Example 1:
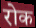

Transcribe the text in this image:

रोक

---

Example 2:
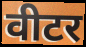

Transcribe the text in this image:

वीटर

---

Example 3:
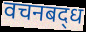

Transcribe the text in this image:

वचनबद्ध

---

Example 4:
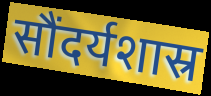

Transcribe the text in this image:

सौंदर्यशास्र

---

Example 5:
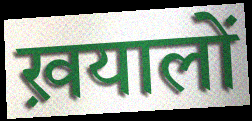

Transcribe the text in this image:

ख़यालों